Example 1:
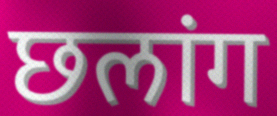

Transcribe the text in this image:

छलांग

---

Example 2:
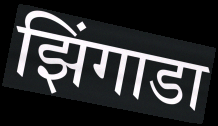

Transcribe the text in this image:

झिंगाडा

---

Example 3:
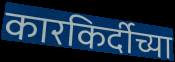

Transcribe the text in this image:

कारकिर्दीच्या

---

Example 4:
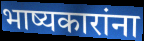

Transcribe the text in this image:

भाष्यकारांना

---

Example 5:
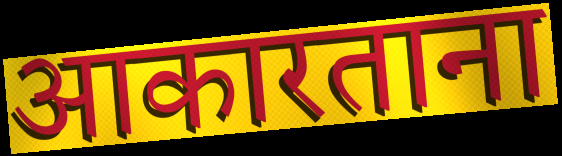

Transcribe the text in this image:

आकारताना